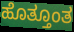
ಹೊತ್ತೂಂತ